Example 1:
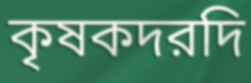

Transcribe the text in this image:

কৃষকদরদি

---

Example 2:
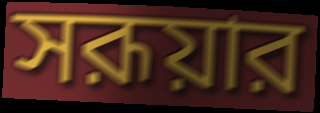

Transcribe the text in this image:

সরূয়ার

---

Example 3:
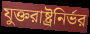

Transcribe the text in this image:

যুক্তরাষ্ট্রনির্ভর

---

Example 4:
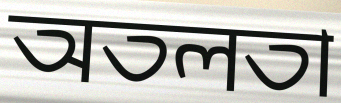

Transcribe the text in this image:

অতলতা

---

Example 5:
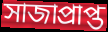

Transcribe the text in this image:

সাজাপ্রাপ্ত